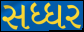
સધ્ધર